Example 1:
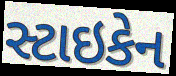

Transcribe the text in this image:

સ્ટાઇકેન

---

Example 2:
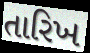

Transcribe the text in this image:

તારિખ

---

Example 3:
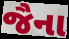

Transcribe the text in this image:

જૈના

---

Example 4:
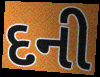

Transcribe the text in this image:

દની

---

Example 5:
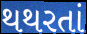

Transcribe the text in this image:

થથરતાં